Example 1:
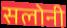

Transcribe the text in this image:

सलोनी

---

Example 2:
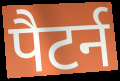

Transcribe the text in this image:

पैटर्न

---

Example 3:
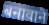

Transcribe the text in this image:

बनावाने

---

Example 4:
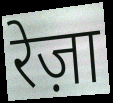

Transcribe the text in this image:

रेज़ा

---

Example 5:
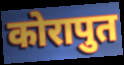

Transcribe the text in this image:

कोरापुत